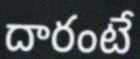
దారంటే